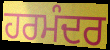
ਹਰਮੰਦਰ